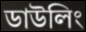
ডাউলিং